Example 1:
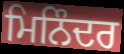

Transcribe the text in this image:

ਮਿਨਿੰਦਰ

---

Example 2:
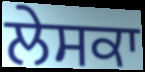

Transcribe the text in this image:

ਲੇਸਕਾ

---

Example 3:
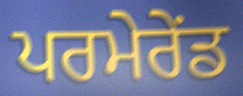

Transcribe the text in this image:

ਪਰਮੇਰੇਂਡ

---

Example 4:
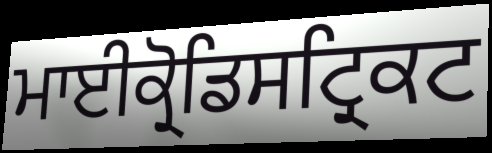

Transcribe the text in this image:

ਮਾਈਕ੍ਰੋਡਿਸਟ੍ਰਿਕਟ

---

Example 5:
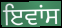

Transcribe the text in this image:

ਇਵਾਂਸ